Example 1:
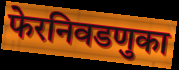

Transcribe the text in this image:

फेरनिवडणुका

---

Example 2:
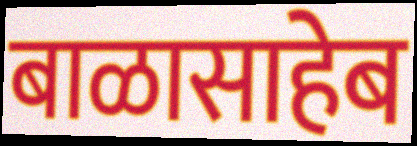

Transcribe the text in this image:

बाळासाहेब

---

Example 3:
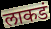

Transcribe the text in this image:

लाकडं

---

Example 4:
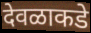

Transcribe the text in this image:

देवळाकडे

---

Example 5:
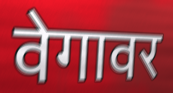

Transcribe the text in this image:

वेगावर